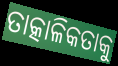
ତାତ୍କାଳିକତାକୁ